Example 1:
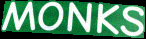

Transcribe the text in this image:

MONKS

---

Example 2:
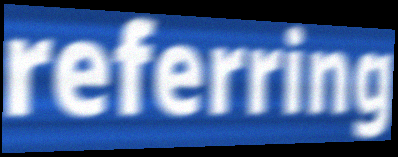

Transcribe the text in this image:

referring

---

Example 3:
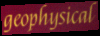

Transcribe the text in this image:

geophysical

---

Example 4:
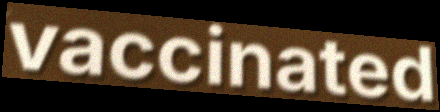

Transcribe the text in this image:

vaccinated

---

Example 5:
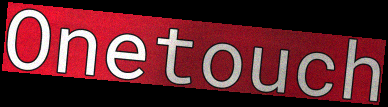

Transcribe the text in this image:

Onetouch